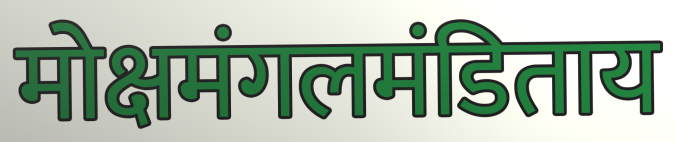
मोक्षमंगलमंडिताय